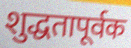
शुद्धतापूर्वक